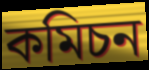
কমিচন